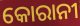
କୋରାନୀ